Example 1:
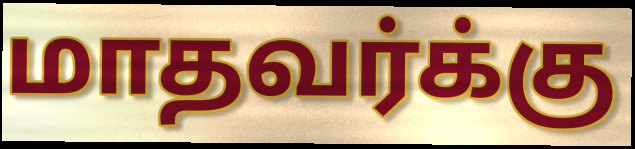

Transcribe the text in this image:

மாதவர்க்கு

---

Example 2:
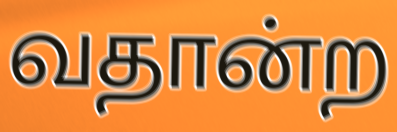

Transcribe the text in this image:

வதான்ற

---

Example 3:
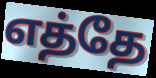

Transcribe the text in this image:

எத்தே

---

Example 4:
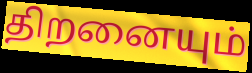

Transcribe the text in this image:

திறனையும்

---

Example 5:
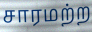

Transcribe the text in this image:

சாரமற்ற